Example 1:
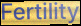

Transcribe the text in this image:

Fertility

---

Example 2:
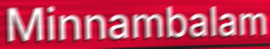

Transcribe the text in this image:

Minnambalam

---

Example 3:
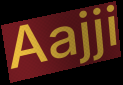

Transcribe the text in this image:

Aajji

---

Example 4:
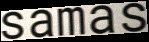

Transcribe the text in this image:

samas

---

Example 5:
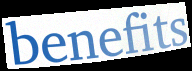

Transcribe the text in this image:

benefits